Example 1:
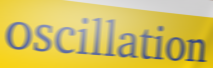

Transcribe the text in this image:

oscillation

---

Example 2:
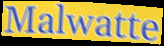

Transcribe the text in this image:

Malwatte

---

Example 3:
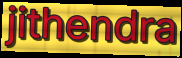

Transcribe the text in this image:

jithendra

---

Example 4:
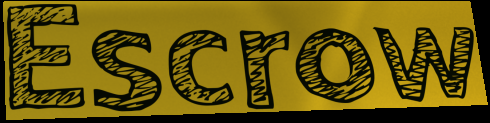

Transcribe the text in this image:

Escrow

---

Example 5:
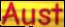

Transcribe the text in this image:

Aust